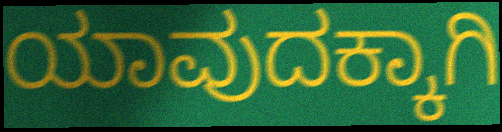
ಯಾವುದಕ್ಕಾಗಿ